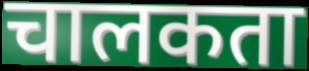
चालकता